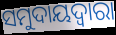
ସମୁଦାୟଦ୍ୱାରା